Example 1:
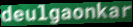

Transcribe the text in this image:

deulgaonkar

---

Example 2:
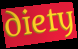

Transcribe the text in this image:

diety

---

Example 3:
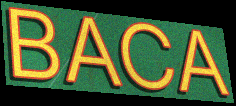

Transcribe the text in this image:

BACA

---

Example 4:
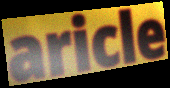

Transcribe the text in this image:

aricle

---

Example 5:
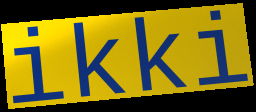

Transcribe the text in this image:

ikki